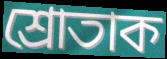
শ্ৰোতাক